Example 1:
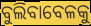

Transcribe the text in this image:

ବୁଲିବାବେଳକୁ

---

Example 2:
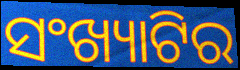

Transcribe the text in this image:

ସଂଖ୍ୟାଟିର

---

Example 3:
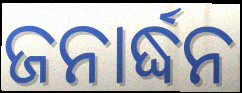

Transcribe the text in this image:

ଜନାର୍ଦ୍ଧନ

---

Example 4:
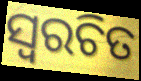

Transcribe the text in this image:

ସ୍ଵରଚିତ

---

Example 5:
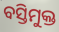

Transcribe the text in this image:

ବସ୍ତିମୁକ୍ତ